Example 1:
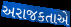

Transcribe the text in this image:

અરાજકતાએ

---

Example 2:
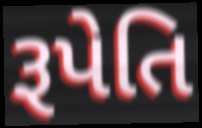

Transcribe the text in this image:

રૂપેતિ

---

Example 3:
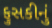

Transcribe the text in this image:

ફુસકીનું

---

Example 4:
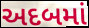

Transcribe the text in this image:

અદબમાં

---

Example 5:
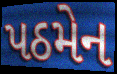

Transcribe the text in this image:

પઠમેન